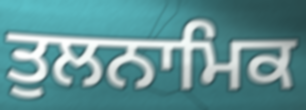
ਤੁਲਨਾਮਿਕ